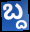
ಬ್ದ